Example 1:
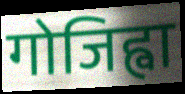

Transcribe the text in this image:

गोजिह्वा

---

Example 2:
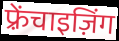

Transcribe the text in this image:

फ़्रेंचाइज़िंग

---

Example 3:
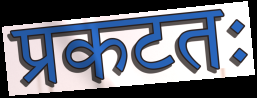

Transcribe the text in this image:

प्रकटतः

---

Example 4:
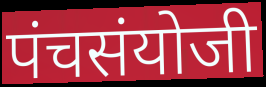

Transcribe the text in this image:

पंचसंयोजी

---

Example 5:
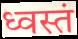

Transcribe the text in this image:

ध्वस्तं